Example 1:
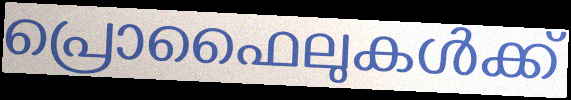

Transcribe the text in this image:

പ്രൊഫൈലുകൾക്ക്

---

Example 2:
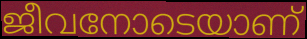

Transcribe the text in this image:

ജീവനോടെയാണ്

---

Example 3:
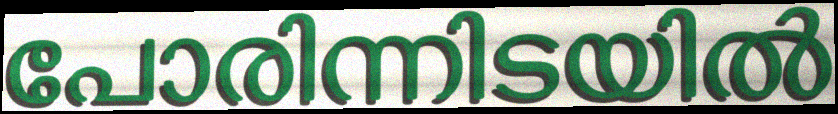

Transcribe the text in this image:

പോരിന്നിടയിൽ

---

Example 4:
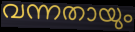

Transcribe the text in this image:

വന്നതായും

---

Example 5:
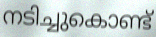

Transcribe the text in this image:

നടിച്ചുകൊണ്ട്